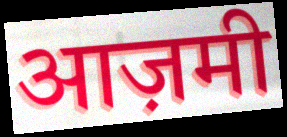
आज़मी